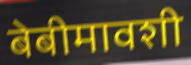
बेबीमावशी